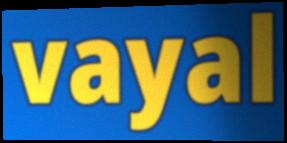
vayal